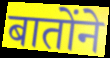
बातोंने